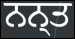
ਨਨ੍ਤ